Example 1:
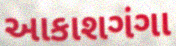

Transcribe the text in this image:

આકાશગંગા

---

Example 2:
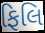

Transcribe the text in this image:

ફિલિ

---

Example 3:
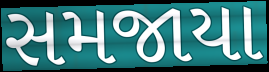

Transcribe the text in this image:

સમજાયા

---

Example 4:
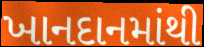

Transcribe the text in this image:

ખાનદાનમાંથી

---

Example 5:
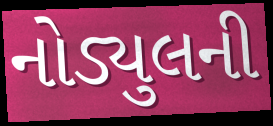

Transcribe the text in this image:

નોડ્યુલની